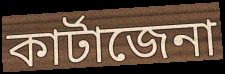
কাৰ্টাজেনা